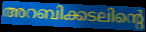
അറബിക്കടലിന്റെ